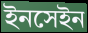
ইনসেইন